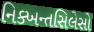
નિક્ખન્તસિલેસો